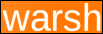
warsh